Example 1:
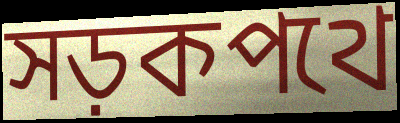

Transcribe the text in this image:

সড়কপথে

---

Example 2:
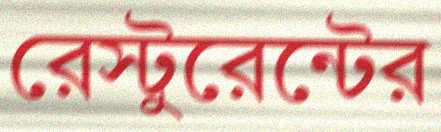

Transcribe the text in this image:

রেস্টুরেন্টের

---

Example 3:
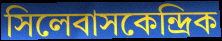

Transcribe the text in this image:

সিলেবাসকেন্দ্রিক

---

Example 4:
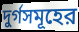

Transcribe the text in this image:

দুর্গসমূহের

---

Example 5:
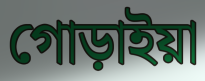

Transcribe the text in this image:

গোড়াইয়া